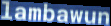
lambawun